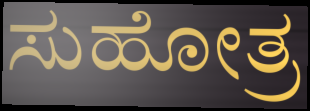
ಸುಹೋತ್ರ